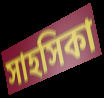
সাহসিকা